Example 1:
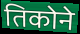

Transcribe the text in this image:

तिकोने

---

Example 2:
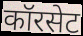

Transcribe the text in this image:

कॉरसेट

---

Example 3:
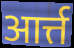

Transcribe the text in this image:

आर्त्त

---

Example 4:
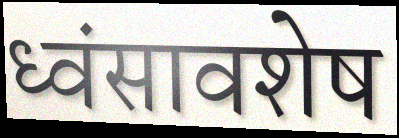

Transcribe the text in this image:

ध्वंसावशेष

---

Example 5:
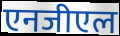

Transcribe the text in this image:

एनजीएल